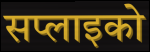
सप्लाइको